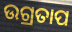
ଉଗ୍ରତାପ